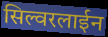
सिल्वरलाईन